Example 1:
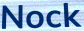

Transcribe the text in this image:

Nock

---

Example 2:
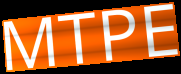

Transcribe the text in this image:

MTPE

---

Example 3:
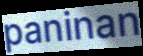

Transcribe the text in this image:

paninan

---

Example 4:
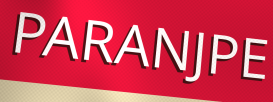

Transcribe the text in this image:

PARANJPE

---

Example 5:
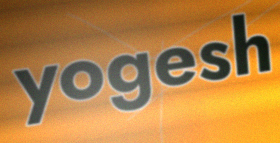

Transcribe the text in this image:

yogesh